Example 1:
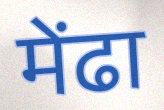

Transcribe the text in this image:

मेंढा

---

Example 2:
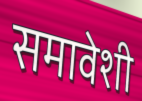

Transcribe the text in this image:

समावेशी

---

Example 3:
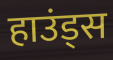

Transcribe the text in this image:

हाउंड्स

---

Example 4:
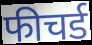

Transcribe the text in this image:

फीचर्ड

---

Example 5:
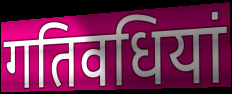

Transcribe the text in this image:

गतिवधियां